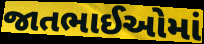
જાતભાઈઓમાં